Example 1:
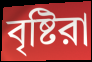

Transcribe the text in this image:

বৃষ্টিরা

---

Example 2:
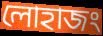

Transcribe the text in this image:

লোহাজং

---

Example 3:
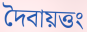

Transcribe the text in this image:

দৈবায়ত্তং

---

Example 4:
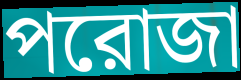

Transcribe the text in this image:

পরোজা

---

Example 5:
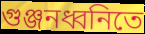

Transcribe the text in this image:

গুঞ্জনধ্বনিতে